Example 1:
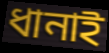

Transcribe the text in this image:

ধানাই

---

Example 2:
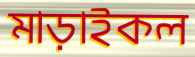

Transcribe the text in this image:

মাড়াইকল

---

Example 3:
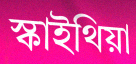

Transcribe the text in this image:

স্কাইথিয়া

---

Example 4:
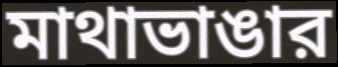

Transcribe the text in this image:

মাথাভাঙার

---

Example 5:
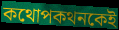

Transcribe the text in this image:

কথোপকথনকেই